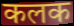
कलक